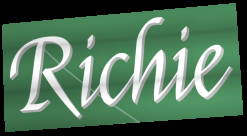
Richie